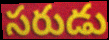
సరుడు